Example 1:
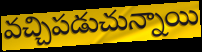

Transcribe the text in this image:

వచ్చిపడుచున్నాయి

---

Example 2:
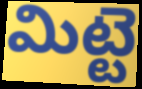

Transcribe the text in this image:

మిట్టె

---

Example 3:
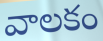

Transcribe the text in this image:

వాలకం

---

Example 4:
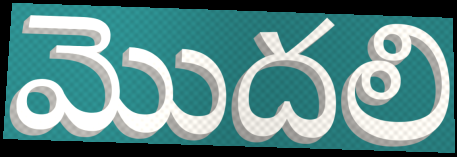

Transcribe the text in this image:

మొదలి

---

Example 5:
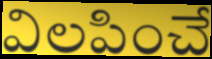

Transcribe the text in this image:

విలపించే